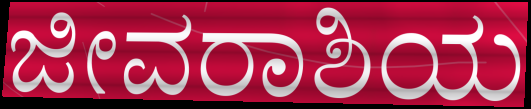
ಜೀವರಾಶಿಯ